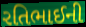
રતિભાઈની